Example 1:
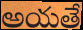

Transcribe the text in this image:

అయతే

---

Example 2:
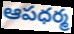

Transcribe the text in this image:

ఆపధర్మ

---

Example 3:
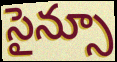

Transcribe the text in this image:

సైన్సూ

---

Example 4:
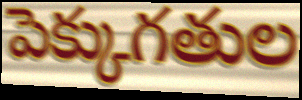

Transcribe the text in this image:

పెక్కుగతుల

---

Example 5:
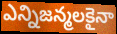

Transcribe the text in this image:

ఎన్నిజన్మలకైనా